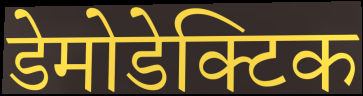
डेमोडेक्टिक